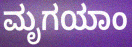
ಮೃಗಯಾಂ